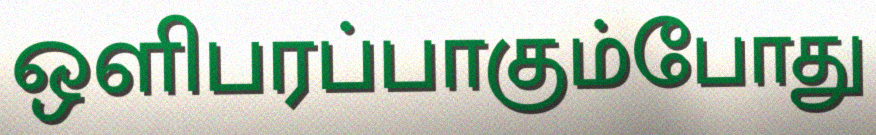
ஒளிபரப்பாகும்போது